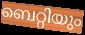
ബെറ്റിയും